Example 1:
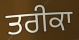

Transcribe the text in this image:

ਤਰੀਕਾ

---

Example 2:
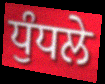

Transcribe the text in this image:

ਧੁੰਧਲੇ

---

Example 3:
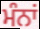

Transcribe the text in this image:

ਮੰਨਾਂ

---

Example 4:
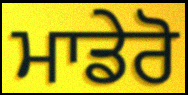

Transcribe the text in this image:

ਮਾਡੇਰੋ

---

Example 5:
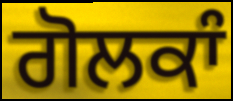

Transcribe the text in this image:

ਗੋਲਕਾੰ